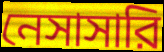
নেসাসারি